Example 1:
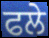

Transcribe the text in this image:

ਫਲੇ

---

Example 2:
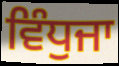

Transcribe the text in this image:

ਵਿੰਧੁਜਾ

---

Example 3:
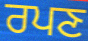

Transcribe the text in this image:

ਰਪਣ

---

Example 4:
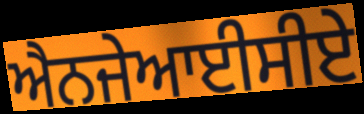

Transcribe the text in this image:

ਐਨਜੇਆਈਸੀਏ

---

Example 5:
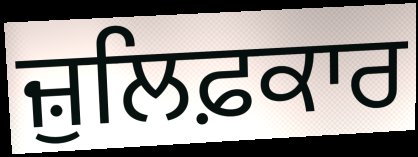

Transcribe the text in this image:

ਜ਼ੁਲਿਫ਼ਕਾਰ